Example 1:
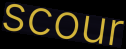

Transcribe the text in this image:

scour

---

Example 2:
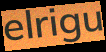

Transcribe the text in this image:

elrigu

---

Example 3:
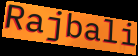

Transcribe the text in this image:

Rajbali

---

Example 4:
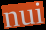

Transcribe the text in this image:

nui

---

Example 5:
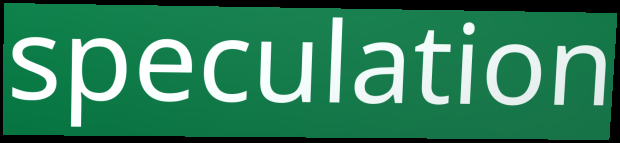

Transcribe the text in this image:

speculation